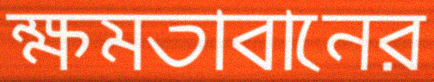
ক্ষমতাবানের